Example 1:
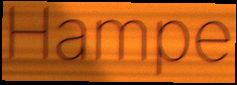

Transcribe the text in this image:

Hampe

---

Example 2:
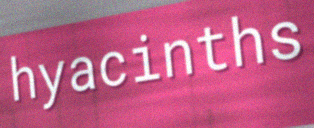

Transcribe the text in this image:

hyacinths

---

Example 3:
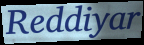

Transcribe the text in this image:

Reddiyar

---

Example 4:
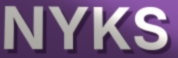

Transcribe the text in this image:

NYKS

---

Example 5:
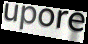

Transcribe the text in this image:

upore